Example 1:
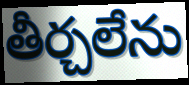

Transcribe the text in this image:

తీర్చలేను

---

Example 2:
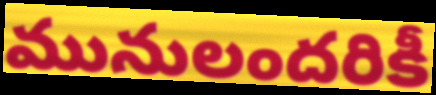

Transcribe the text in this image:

మునులందరికీ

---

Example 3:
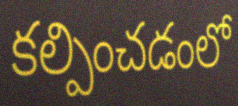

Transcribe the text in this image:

కల్పించడంలో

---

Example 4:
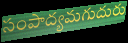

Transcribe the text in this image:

సంపాద్యమగుదురు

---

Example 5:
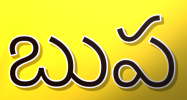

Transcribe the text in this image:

బుప